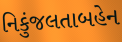
નિકુંજલતાબહેન